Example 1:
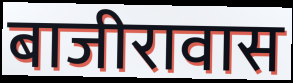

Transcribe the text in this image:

बाजीरावास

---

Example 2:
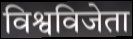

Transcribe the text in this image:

विश्वविजेता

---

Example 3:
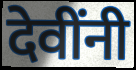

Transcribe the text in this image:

देवींनी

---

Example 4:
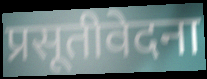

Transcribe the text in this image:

प्रसूतीवेदना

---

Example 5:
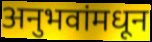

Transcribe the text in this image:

अनुभवांमधून